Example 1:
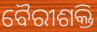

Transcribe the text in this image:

ବୈରୀଶକ୍ତି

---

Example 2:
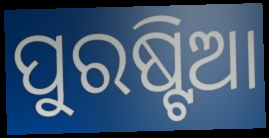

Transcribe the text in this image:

ପୁରଷ୍ଟିଆ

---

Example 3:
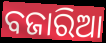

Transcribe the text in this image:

ବଜାରିଆ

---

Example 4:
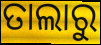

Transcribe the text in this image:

ତାଲାରୁ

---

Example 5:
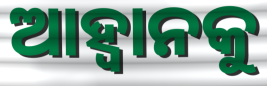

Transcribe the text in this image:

ଆହ୍ବାନକୁ